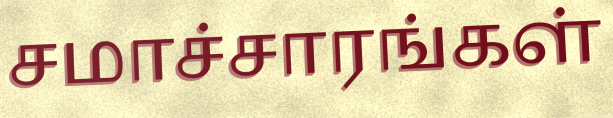
சமாச்சாரங்கள்